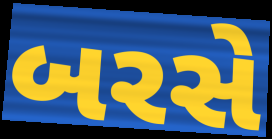
બરસે